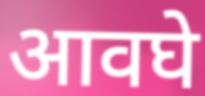
आवघे